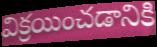
విక్రయించడానికి